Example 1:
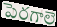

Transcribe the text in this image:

పెరగాలె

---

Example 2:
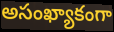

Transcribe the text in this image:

అసంఖ్యాకంగా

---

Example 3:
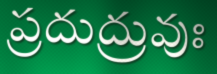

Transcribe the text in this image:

ప్రదుద్రువుః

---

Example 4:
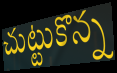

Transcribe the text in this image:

చుట్టుకొన్న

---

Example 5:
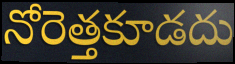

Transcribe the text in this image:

నోరెత్తకూడదు